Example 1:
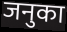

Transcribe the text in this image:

जनुका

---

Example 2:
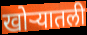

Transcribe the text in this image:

खोऱ्यातली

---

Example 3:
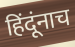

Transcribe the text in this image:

हिंदूंनाच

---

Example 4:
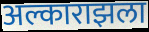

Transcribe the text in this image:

अल्काराझला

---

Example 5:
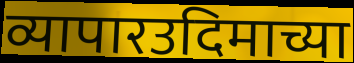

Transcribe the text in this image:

व्यापारउदिमाच्या